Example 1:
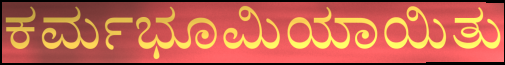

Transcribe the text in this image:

ಕರ್ಮಭೂಮಿಯಾಯಿತು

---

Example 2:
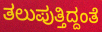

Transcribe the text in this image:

ತಲುಪುತ್ತಿದ್ದಂತೆ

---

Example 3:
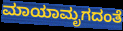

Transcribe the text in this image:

ಮಾಯಾಮೃಗದಂತೆ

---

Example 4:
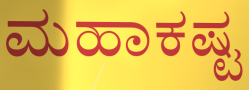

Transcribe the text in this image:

ಮಹಾಕಷ್ಟ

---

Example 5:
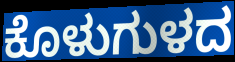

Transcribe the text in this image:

ಕೊಳುಗುಳದ